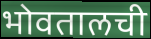
भोवतालची